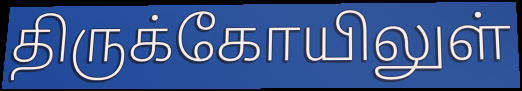
திருக்கோயிலுள்